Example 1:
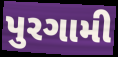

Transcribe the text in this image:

પુરગામી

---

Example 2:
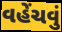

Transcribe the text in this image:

વહેંચવું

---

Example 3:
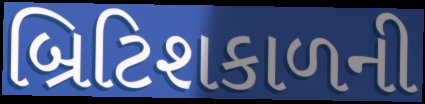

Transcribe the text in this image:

બ્રિટિશકાળની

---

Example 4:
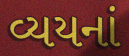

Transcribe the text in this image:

વ્યયનાં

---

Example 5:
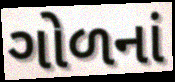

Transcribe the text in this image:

ગોળનાં